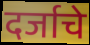
दर्जाचे